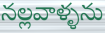
నల్లవాళ్ళను